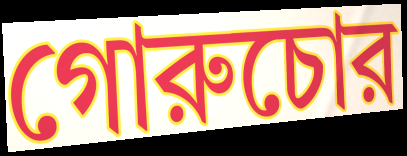
গোরুচোর